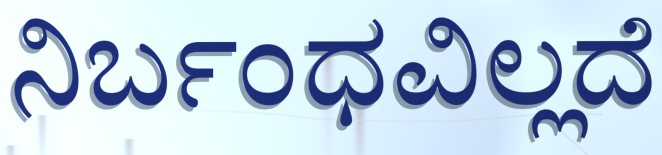
ನಿರ್ಬಂಧವಿಲ್ಲದೆ